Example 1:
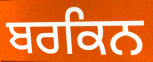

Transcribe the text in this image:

ਬਰਕਿਨ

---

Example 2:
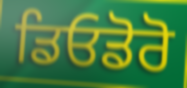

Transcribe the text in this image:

ਡਿਓਡੋਰੋ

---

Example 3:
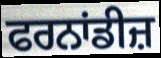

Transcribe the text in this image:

ਫਰਨਾਂਡੀਜ਼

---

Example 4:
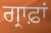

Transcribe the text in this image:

ਗ੍ਰਾਫ਼ਾਂ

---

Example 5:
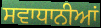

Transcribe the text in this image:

ਸਵਾਧਾਨੀਆਂ